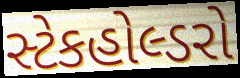
સ્ટેકહોલ્ડરો